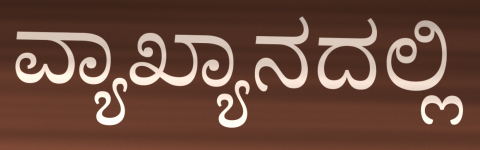
ವ್ಯಾಖ್ಯಾನದಲ್ಲಿ